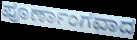
ಪೂರ್ಣಾಂಗವಾದ